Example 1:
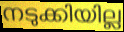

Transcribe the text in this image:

നടുക്കിയില്ല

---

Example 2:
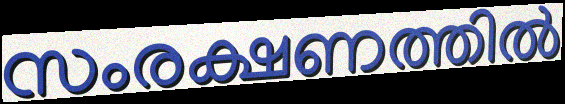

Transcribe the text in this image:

സംരക്ഷണത്തിൽ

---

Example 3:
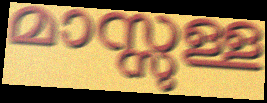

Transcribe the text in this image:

മാസ്സുള്ള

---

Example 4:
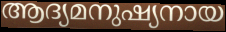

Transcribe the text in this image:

ആദ്യമനുഷ്യനായ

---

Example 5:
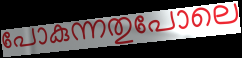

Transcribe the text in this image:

പോകുന്നതുപോലെ